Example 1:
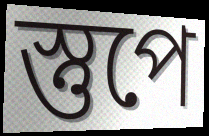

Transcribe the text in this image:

স্তুপে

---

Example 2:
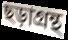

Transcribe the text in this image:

ছড়াগ্রন্থ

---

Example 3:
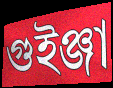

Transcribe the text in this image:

গুইঞ্জা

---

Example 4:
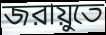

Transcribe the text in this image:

জরায়ুতে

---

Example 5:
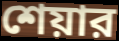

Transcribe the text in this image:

শেয়ার